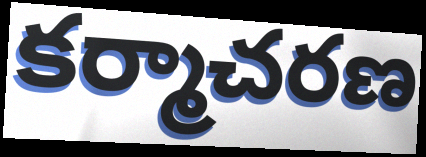
కర్మాచరణ